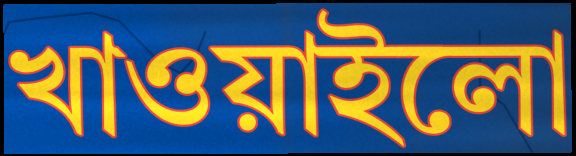
খাওয়াইলো